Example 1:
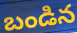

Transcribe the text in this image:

బండిన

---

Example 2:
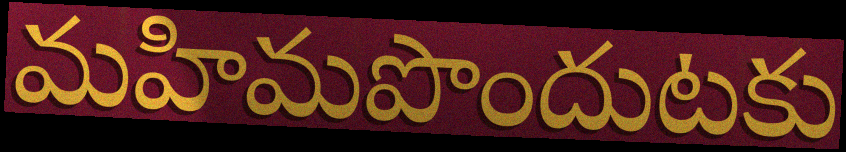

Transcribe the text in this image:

మహిమపొందుటకు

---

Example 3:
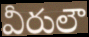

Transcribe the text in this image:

వీరులౌ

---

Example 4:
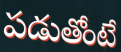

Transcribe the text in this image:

పడుతోంటే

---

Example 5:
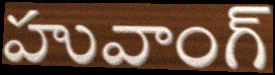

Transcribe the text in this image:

హువాంగ్